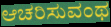
ಆಚರಿಸುವಂಥ